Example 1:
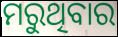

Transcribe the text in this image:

ମରୁଥିବାର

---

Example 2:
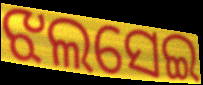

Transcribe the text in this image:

ଝଲସେଇ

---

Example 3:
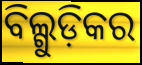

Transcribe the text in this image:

ବିଲ୍ଗୁଡ଼ିକର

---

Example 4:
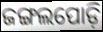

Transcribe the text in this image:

ଜଙ୍ଗଲପୋଡ଼ି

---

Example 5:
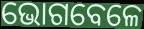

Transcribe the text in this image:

ଭୋଗବେଳେ